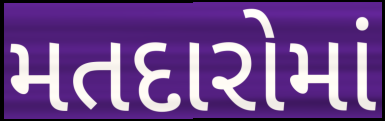
મતદારોમાં